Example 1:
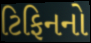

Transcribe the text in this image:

ટિફિનનો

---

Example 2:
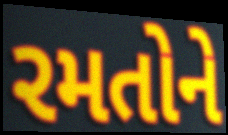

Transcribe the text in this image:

રમતોને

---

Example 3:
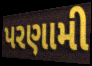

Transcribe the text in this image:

પરણામી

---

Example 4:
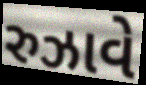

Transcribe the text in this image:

રુઝાવે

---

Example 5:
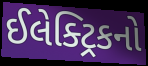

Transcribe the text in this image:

ઈલેક્ટ્રિકનો